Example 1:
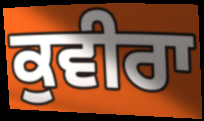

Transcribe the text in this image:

ਕੁਵੀਰਾ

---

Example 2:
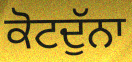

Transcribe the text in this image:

ਕੋਟਦੁੱਨਾ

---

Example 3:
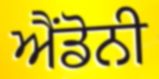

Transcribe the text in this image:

ਐਂਡੋਨੀ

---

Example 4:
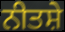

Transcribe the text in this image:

ਨੀਤਸ਼ੇ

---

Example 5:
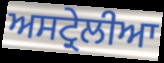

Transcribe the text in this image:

ਅਸਟ੍ਰੇਲੀਆ